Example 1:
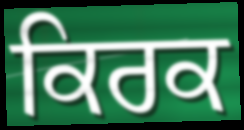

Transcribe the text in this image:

ਕਿਰਕ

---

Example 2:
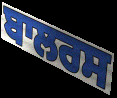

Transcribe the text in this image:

ਬਾਲਰਸ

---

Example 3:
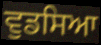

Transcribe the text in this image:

ਵੁਡਸਿਆ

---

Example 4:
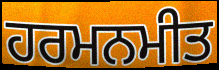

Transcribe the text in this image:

ਹਰਮਨਮੀਤ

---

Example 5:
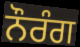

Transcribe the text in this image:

ਨੌਰੰਗ